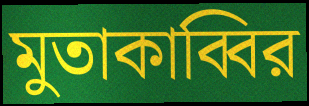
মুতাকাব্বির